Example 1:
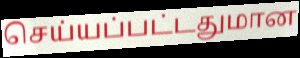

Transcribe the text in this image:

செய்யப்பட்டதுமான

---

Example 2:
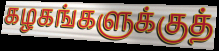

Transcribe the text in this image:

கழகங்களுக்குத்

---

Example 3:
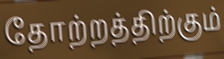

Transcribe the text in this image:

தோற்றத்திற்கும்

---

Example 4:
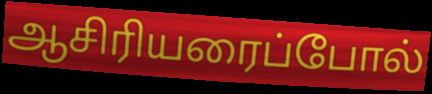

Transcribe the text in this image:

ஆசிரியரைப்போல்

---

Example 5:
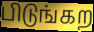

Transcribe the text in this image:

பிடுங்கற